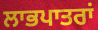
ਲਾਭਪਾਤਰਾਂ